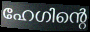
ഹേഗിന്റെ